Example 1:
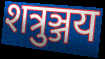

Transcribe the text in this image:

शत्रुञ्जय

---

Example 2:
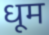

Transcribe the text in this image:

धूम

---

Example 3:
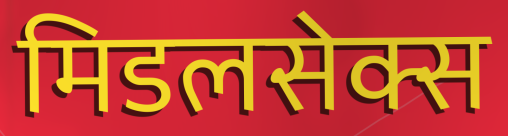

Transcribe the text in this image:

मिडलसेक्स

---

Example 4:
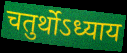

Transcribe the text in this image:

चतुर्थोऽध्याय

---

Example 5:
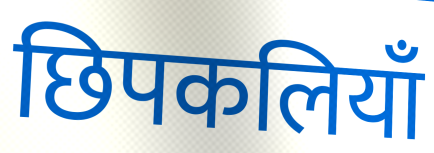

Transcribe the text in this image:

छिपकलियाँ